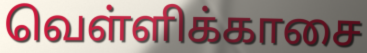
வெள்ளிக்காசை